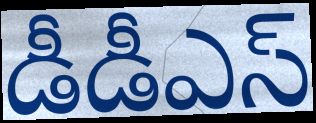
డీడీఎస్